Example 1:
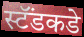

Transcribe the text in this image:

स्टॅंडकडे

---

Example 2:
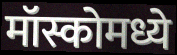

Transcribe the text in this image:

मॉस्कोमध्ये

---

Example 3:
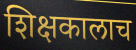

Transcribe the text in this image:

शिक्षकालाच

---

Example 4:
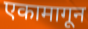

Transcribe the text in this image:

एकामागून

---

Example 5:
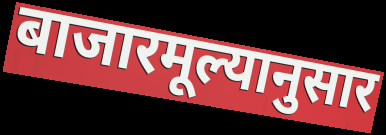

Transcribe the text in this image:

बाजारमूल्यानुसार